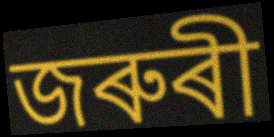
জৰুৰী